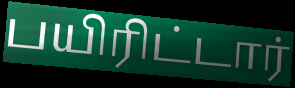
பயிரிட்டார்